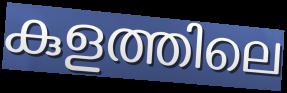
കുളത്തിലെ